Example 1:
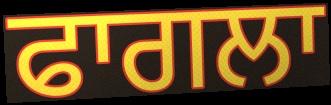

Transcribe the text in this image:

ਫਾਗਲਾ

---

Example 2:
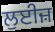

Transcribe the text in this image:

ਲੁਈਜ਼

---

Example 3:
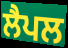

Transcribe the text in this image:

ਲੈਪਲ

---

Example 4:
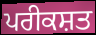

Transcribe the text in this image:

ਪਰੀਕਸ਼ਤ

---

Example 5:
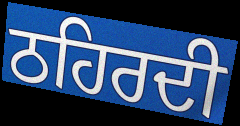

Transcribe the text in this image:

ਠਹਿਰਦੀ